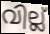
വില്ല്